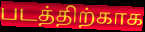
படத்திற்காக